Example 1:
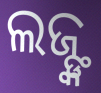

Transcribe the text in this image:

ଲଜ୍ଙ୍କ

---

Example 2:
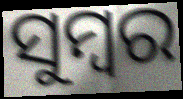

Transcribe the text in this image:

ସୁମ୍ବର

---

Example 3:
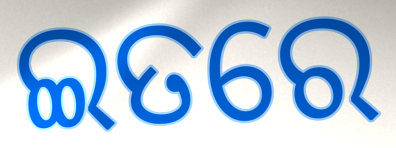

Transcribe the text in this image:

ଇତରେ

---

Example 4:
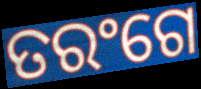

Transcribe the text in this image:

ତରଂଗେ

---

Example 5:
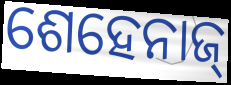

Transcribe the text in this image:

ଶେହେନାଜ୍